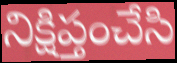
నిక్షిప్తంచేసి